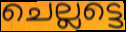
ചെല്ലട്ടെ